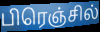
பிரெஞ்சில்